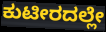
ಕುಟೀರದಲ್ಲೇ